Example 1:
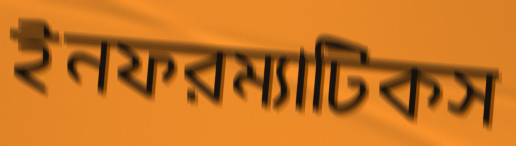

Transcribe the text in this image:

ইনফরম্যাটিকস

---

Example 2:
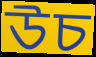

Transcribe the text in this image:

উচ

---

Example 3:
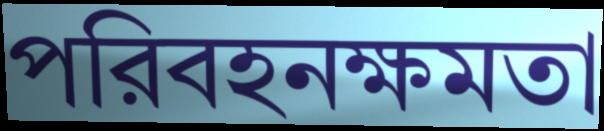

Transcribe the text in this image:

পরিবহনক্ষমতা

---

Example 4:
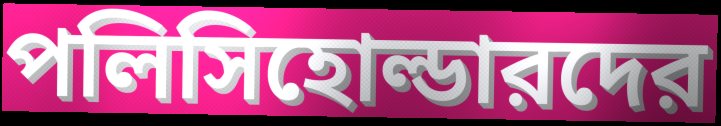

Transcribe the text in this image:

পলিসিহোল্ডারদের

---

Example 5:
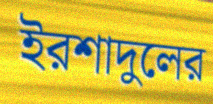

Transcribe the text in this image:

ইরশাদুলের